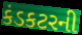
કંડકટરની